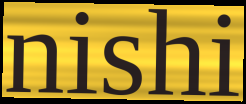
nishi